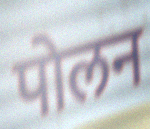
पोलन